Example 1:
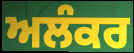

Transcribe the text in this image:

ਅਲੰਕਰ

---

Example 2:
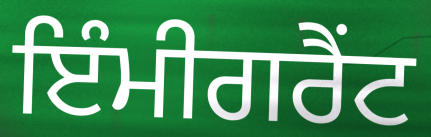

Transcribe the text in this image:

ਇੰਮੀਗਰੈਂਟ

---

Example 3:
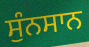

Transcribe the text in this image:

ਸੁੰਨਸਾਨ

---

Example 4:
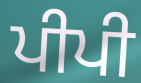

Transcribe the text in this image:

ਪੀਪੀ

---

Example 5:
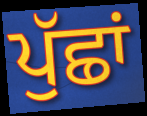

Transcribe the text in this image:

ਪੁੱਛਾਂ